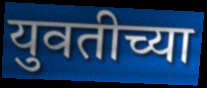
युवतीच्या